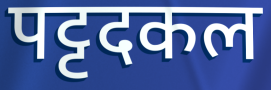
पट्टदकल